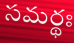
సమర్థః